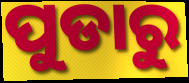
ପୁଡାରୁ